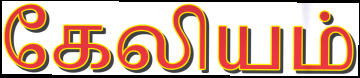
கேலியம்